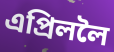
এপ্ৰিললৈ